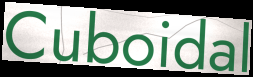
Cuboidal